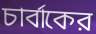
চার্বাকের